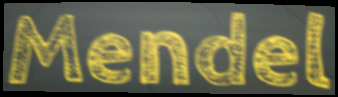
Mendel